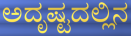
ಅದೃಷ್ಟದಲ್ಲಿನ